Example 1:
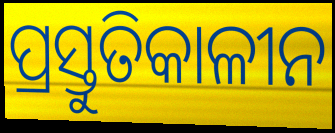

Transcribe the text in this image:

ପ୍ରସ୍ତୁତିକାଳୀନ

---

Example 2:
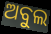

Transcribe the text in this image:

ଅବୁଲ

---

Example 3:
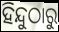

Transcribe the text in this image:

ହିନ୍ଦୁଠାରୁ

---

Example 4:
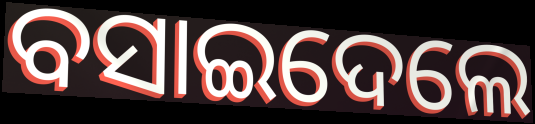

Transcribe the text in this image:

ବସାଇଦେଲେ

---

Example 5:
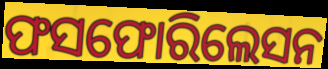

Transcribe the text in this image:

ଫସଫୋରିଲେସନ